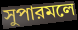
সুপারমলে